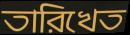
তারিখেত